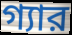
গ্যার